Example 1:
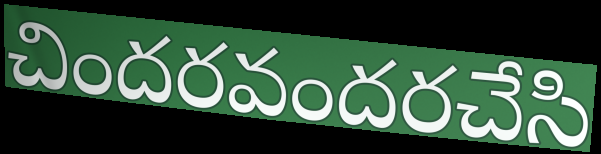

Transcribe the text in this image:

చిందరవందరచేసి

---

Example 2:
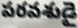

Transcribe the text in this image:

పరవశుడై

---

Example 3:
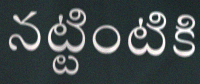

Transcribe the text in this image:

నట్టింటికి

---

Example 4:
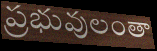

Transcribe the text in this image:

ప్రభువులంతా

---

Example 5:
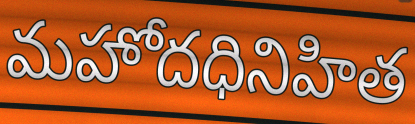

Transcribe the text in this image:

మహోదధినిహిత